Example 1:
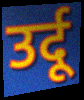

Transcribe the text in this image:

उर्दू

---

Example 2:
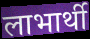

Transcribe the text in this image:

लाभार्थी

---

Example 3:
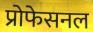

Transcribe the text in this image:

प्रोफेसनल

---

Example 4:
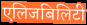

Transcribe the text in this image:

एलिजबिलिटी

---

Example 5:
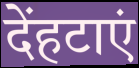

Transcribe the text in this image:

देंहटाएं